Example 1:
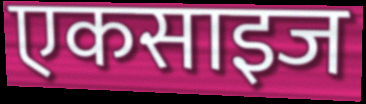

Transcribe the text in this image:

एकसाइज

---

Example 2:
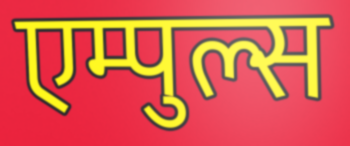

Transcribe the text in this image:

एम्पुल्स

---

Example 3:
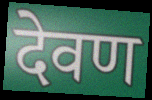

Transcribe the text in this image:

देवण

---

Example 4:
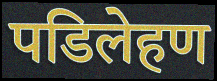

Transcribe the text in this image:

पडिलेहण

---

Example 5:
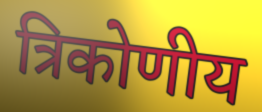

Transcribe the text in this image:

त्रिकोणीय